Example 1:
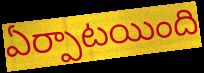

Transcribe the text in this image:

ఏర్పాటయింది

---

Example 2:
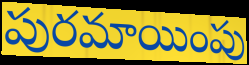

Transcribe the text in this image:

పురమాయింపు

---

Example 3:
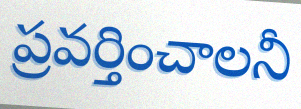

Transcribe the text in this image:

ప్రవర్తించాలనీ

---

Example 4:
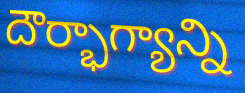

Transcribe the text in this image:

దౌర్భాగ్యాన్ని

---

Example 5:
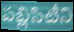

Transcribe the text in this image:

పబ్లిసిటీని